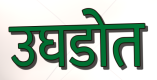
उघडोत